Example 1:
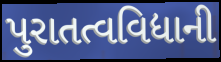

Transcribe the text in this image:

પુરાતત્વવિદ્યાની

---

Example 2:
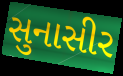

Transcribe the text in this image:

સુનાસીર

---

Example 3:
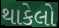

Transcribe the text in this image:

થાકેલો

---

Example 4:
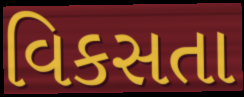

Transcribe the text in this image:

વિકસતા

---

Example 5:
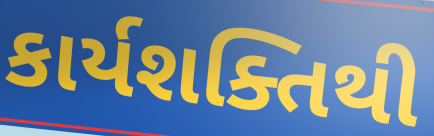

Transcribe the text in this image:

કાર્યશક્તિથી